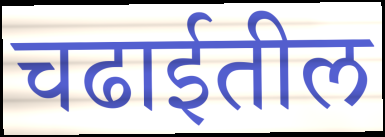
चढाईतील